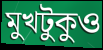
মুখটুকুও